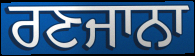
ਰਣਜਾਨਾ